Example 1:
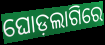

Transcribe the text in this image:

ଘୋଡ଼ଲାଗିରେ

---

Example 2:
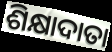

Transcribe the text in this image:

ଶିକ୍ଷାଦାତା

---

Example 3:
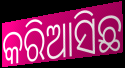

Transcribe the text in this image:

କରିଆସିଛ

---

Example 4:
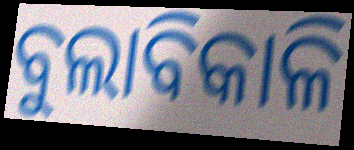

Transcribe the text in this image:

ବୁଲାବିକାଳି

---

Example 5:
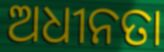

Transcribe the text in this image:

ଅଧୀନତା